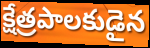
క్షేత్రపాలకుడైన